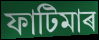
ফাটিমাৰ